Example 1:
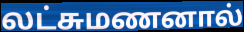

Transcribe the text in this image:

லட்சுமணனால்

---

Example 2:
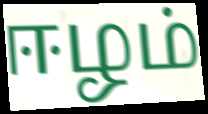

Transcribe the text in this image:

ஈழம்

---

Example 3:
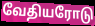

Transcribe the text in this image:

வேதியரோடு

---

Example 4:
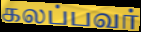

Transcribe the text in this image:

கலப்பவர்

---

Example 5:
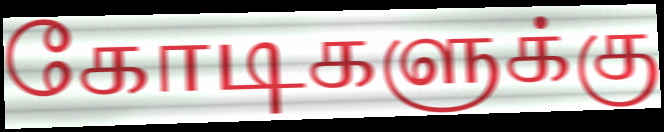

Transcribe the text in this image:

கோடிகளுக்கு